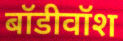
बॉडीवॉश